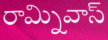
రామ్నివాస్